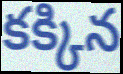
కక్కిన